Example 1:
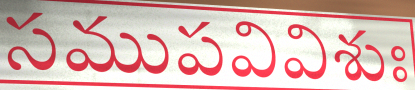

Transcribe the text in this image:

సముపవివిశుః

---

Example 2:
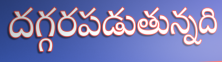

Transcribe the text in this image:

దగ్గరపడుతున్నది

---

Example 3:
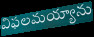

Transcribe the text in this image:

విఫలమయ్యాను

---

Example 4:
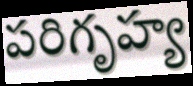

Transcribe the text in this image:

పరిగృహ్య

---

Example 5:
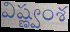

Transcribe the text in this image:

విష్ణ్వంశ